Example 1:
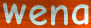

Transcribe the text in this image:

wena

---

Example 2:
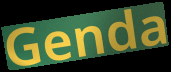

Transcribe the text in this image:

Genda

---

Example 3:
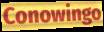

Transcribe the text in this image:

Conowingo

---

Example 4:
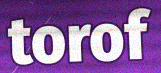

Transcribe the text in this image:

torof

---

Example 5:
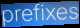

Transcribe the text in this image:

prefixes